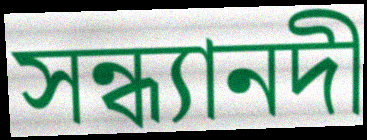
সন্ধ্যানদী